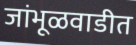
जांभूळवाडीत